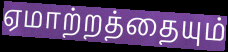
ஏமாற்றத்தையும்